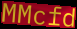
MMcfd